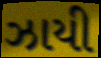
ઝાયી